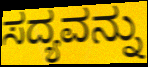
ಸದ್ಯವನ್ನು